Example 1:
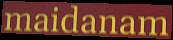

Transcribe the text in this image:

maidanam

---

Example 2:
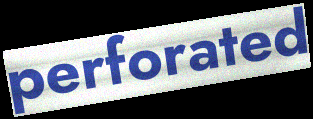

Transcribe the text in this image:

perforated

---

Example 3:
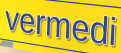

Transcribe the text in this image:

vermedi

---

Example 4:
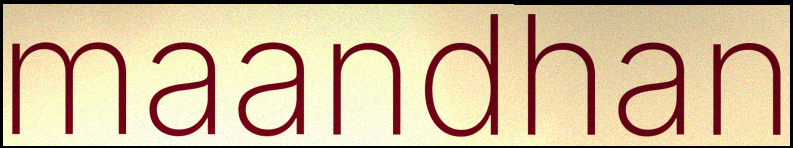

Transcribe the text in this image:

maandhan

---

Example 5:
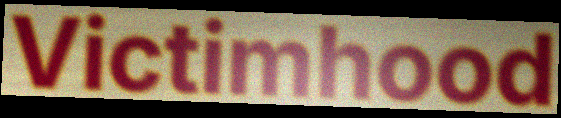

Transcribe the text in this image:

Victimhood